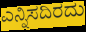
ಎನ್ನಿಸದಿರದು